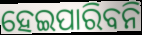
ହେଇପାରିବନି